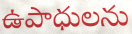
ఉపాధులను